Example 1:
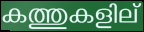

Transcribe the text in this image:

കത്തുകളില്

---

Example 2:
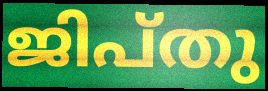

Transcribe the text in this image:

ജിപ്തു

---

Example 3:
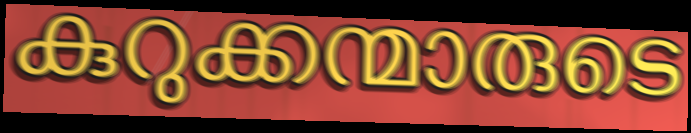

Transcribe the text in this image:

കുറുക്കന്മാരുടെ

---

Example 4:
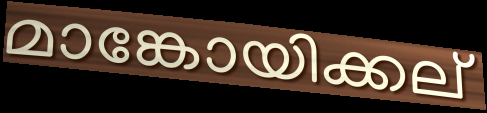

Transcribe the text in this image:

മാങ്കോയിക്കല്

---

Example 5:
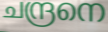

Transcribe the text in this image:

ചന്ദ്രനെ